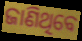
ଜାଣିଥିବେ